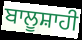
ਬਾਲੂਸ਼ਾਹੀ